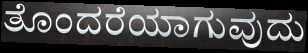
ತೊಂದರೆಯಾಗುವುದು